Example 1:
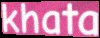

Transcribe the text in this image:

khata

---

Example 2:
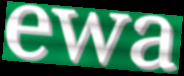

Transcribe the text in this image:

ewa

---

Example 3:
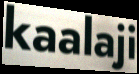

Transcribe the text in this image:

kaalaji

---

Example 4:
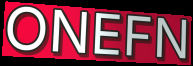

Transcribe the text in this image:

ONEFN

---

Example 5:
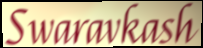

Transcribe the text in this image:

Swaravkash